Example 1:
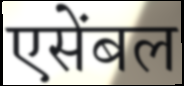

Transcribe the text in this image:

एसेंबल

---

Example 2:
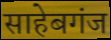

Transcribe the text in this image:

साहेबगंज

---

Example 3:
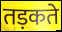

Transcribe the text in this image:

तड़कते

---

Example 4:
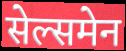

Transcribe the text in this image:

सेल्समेन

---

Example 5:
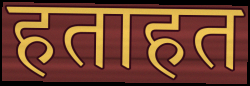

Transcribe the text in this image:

हताहत